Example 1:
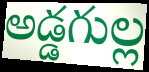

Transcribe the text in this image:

అడ్డగుల్ల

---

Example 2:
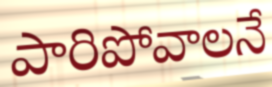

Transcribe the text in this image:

పారిపోవాలనే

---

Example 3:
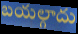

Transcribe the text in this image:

బయల్గాదు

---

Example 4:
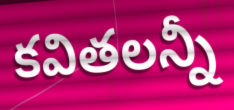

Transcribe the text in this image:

కవితలన్నీ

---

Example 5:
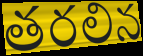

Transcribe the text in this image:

తరలిన